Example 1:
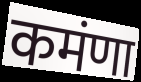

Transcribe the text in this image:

कमंणा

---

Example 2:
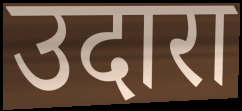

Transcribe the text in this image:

उदारा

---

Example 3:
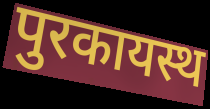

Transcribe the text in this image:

पुरकायस्थ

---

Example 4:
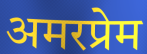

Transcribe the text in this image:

अमरप्रेम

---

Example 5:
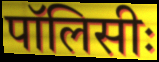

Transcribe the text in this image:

पॉलिसीः